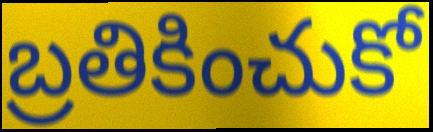
బ్రతికించుకో